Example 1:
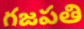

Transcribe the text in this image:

గజపతి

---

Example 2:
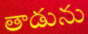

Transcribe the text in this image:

తాడును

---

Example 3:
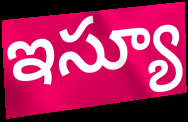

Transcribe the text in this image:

ఇస్యూ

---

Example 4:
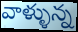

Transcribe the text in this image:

వాళ్ళున్న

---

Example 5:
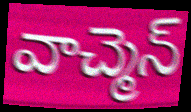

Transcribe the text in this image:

వాచ్మెన్